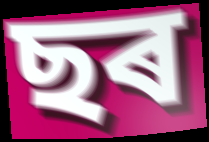
ছৰ